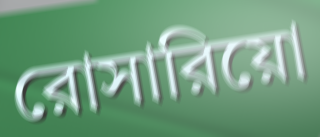
রোসারিয়ো